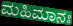
ಮಹಿಮಾನಃ